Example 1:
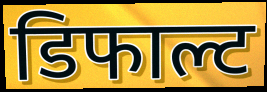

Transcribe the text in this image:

डिफाल्ट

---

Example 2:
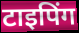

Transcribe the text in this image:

टाइपिंग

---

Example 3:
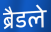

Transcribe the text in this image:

ब्रैडले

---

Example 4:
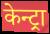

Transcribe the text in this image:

केन्ट्रा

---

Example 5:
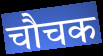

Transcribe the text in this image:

चौचक